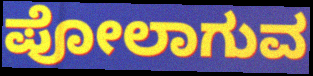
ಪೋಲಾಗುವ